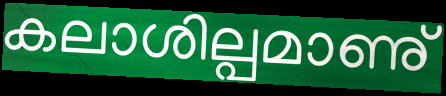
കലാശില്പമാണു്